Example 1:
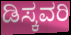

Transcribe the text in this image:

ಡಿಸ್ಕವರಿ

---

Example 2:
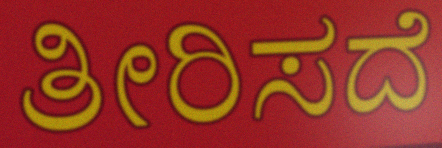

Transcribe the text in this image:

ತೀರಿಸದೆ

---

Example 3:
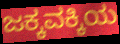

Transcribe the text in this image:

ಜಕ್ಕವಕ್ಕಿಯ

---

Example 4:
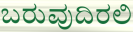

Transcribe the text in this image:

ಬರುವುದಿರಲಿ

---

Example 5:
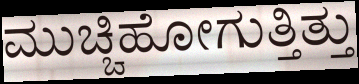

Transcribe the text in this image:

ಮುಚ್ಚಿಹೋಗುತ್ತಿತ್ತು